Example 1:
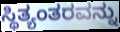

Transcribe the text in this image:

ಸ್ಥಿತ್ಯಂತರವನ್ನು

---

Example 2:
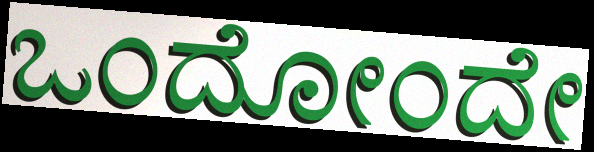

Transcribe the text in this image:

ಒಂದೋಂದೇ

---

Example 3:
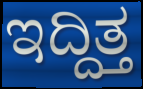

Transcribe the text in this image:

ಇದ್ದಿತ್ತ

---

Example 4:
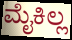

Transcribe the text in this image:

ಮೈಕಿಲ್ಲ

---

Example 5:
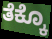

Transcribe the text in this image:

ತೆಕ್ಕೊ